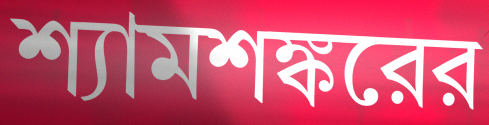
শ্যামশঙ্করের